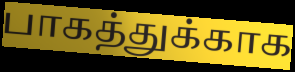
பாகத்துக்காக